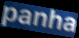
panha